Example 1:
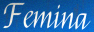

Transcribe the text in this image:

Femina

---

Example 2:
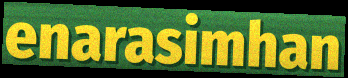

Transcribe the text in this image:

enarasimhan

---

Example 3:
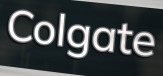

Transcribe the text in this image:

Colgate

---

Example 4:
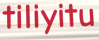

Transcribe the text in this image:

tiliyitu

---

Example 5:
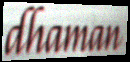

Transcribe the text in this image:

dhaman